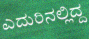
ಎದುರಿನಲ್ಲಿದ್ದ